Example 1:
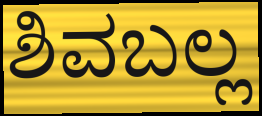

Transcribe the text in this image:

ಶಿವಬಲ್ಲ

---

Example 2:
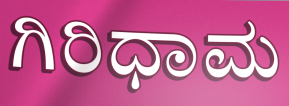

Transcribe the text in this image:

ಗಿರಿಧಾಮ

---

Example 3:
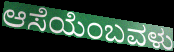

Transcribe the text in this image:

ಆಸೆಯೆಂಬವಳು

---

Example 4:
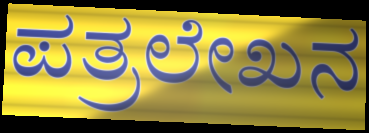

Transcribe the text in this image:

ಪತ್ರಲೇಖನ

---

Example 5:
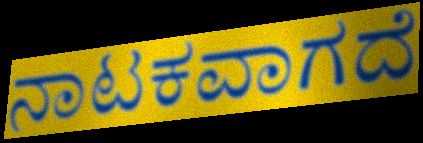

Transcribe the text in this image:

ನಾಟಕವಾಗದೆ